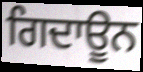
ਗਿਦਾਊਨ